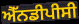
ਐੱਨਡੀਪੀਸੀ